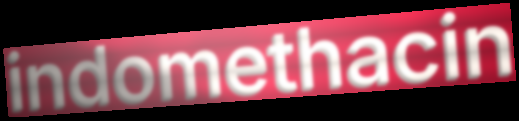
indomethacin